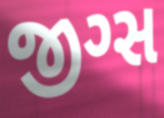
જીગ્સ